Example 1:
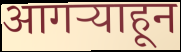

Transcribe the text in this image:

आगऱ्याहून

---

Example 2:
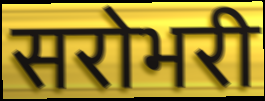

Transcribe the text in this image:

सरोभरी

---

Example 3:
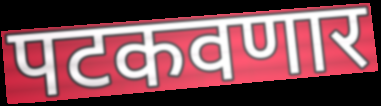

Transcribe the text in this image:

पटकवणार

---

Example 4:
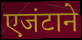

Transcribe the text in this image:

एजंटाने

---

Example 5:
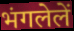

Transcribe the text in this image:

भंगलेलें